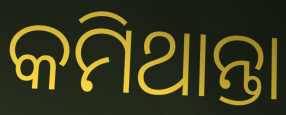
କମିଥାନ୍ତା